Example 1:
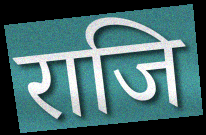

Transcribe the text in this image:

राजि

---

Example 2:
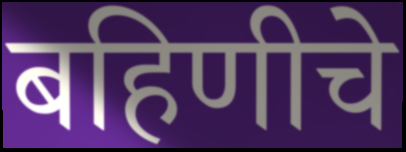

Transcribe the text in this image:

बहिणीचे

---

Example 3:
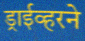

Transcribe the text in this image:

ड्राईव्हरने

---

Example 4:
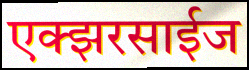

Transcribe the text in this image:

एक्झरसाईज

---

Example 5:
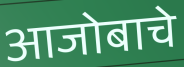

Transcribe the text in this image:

आजोबाचे